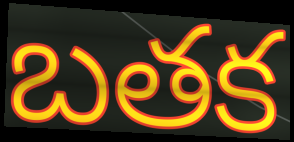
బతక